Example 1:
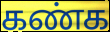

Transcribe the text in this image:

கண்க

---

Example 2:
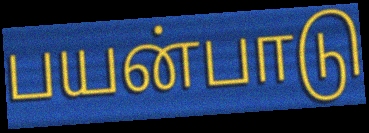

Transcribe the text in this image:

பயன்பாடு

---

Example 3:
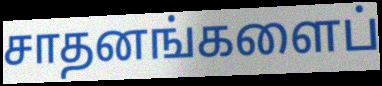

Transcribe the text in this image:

சாதனங்களைப்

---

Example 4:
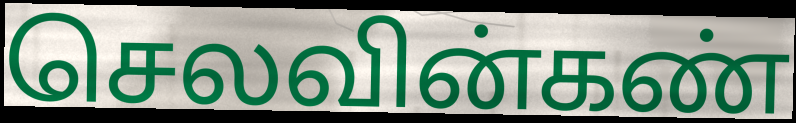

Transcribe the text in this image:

செலவின்கண்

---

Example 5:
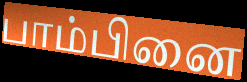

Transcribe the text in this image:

பாம்பினை